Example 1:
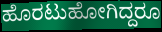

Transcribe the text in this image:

ಹೊರಟುಹೋಗಿದ್ದರೂ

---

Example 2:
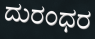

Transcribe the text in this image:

ದುರಂಧರ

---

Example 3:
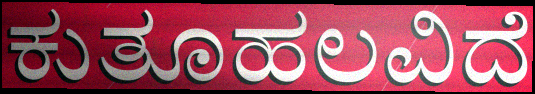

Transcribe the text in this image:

ಕುತೂಹಲವಿದೆ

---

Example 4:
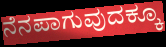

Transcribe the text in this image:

ನೆನಪಾಗುವುದಕ್ಕೂ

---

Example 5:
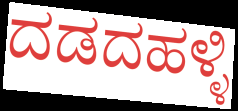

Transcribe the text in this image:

ದಡದಹಳ್ಳಿ